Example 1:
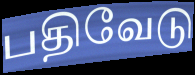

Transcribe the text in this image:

பதிவேடு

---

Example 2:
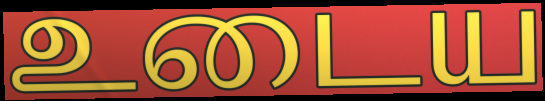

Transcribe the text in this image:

உடைய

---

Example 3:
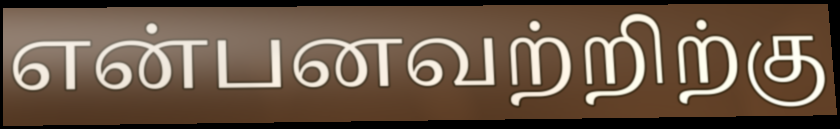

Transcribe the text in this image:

என்பனவற்றிற்கு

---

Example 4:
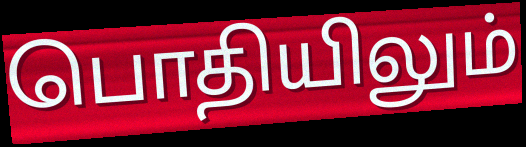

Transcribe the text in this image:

பொதியிலும்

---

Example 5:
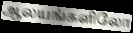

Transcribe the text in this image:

ஆலயங்களிலோ